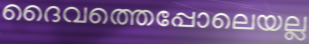
ദൈവത്തെപ്പോലെയല്ല